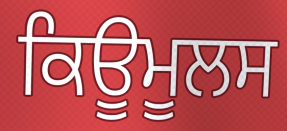
ਕਿਊਮੂਲਸ